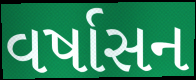
વર્ષાસન